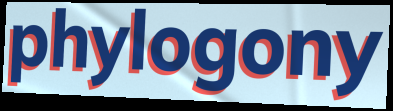
phylogony